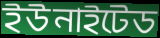
ইউনাইটেড